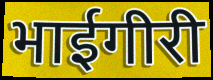
भाईगीरी